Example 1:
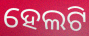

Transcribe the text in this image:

ହେଲଟି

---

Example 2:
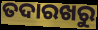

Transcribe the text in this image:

ତଦାରଖରୁ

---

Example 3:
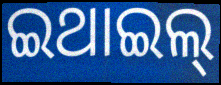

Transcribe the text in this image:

ଇଥାଇଲ୍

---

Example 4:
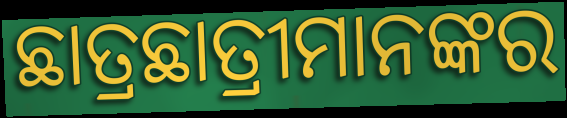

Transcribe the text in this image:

ଛାତ୍ରଛାତ୍ରୀମାନଙ୍କର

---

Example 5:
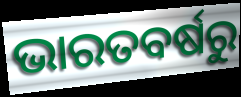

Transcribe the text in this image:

ଭାରତବର୍ଷରୁ